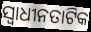
ସ୍ୱାଧୀନତାଟିକ